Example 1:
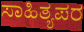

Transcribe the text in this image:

ಸಾಹಿತ್ಯಪರ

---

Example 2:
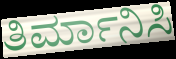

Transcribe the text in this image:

ತಿರ್ಮಾನಿಸಿ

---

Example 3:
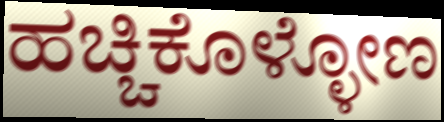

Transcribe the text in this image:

ಹಚ್ಚಿಕೊಳ್ಳೋಣ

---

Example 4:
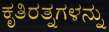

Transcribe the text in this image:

ಕೃತಿರತ್ನಗಳನ್ನು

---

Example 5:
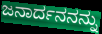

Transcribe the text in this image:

ಜನಾರ್ದನನನ್ನು